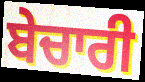
ਬੇਚਾਰੀ